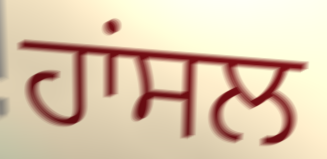
ਹਾਂਸਲ